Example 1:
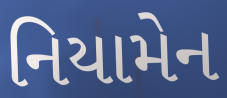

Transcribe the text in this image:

નિયામેન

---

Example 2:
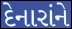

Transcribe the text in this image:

દેનારાંને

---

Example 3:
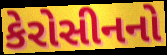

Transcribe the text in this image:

કેરોસીનનો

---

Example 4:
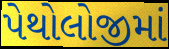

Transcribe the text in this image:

પેથોલોજીમાં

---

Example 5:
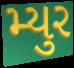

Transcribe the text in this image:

મ્યુર